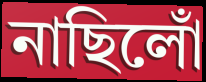
নাছিলোঁ